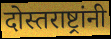
दोस्तराष्ट्रांनी